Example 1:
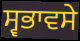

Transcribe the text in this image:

ਸ੍ਵਭਾਵਸੇ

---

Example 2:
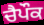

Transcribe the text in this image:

ਚੈਪੌਕ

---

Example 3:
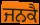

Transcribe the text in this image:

ਜਨਕੈ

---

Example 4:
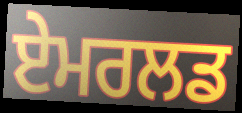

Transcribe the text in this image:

ਏਮਰਲਡ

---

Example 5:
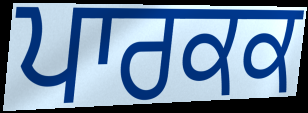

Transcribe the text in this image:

ਪਾਰਕਕ